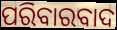
ପରିବାରବାଦ